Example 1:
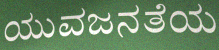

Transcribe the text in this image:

ಯುವಜನತೆಯ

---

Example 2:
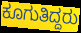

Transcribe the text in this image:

ಕೂಗುತಿದ್ದರು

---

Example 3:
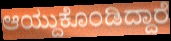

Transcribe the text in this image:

ಆಯ್ದುಕೊಂಡಿದ್ದಾರೆ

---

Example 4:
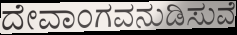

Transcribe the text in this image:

ದೇವಾಂಗವನುಡಿಸುವೆ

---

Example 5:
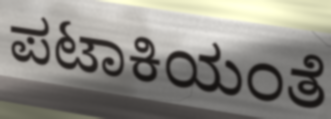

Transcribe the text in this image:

ಪಟಾಕಿಯಂತೆ